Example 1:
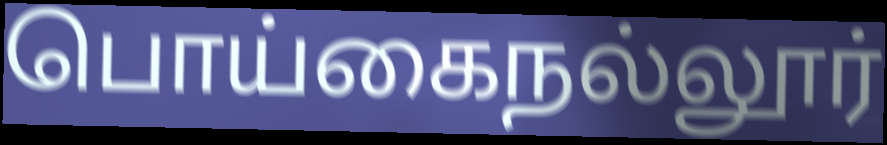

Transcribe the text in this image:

பொய்கைநல்லூர்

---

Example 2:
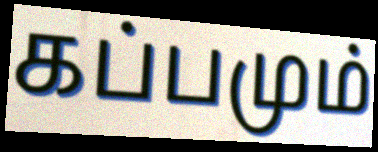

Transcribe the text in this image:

கப்பமும்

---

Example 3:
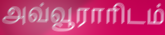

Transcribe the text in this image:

அவ்வூராரிடம்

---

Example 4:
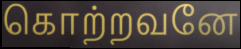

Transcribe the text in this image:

கொற்றவனே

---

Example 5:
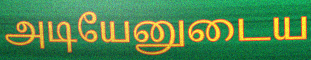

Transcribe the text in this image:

அடியேனுடைய